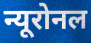
न्यूरोनल